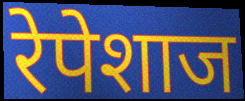
रेपेशाज